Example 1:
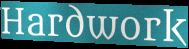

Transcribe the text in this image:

Hardwork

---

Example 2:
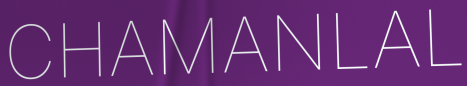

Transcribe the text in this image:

CHAMANLAL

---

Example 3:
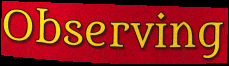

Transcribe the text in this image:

Observing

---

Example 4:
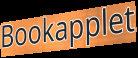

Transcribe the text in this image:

Bookapplet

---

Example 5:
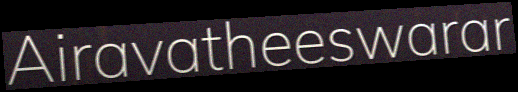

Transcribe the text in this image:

Airavatheeswarar